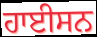
ਹਾਈਸਨ